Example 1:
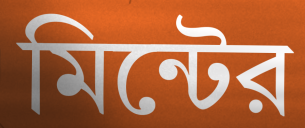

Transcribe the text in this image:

মিন্টের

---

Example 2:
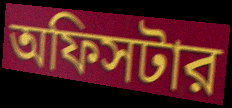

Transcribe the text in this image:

অফিসটার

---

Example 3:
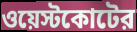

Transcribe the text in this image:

ওয়েস্টকোটের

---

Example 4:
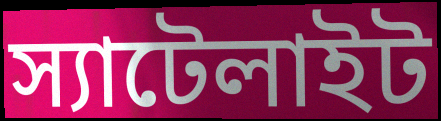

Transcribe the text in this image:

স্যাটেলাইট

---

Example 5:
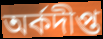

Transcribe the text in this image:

অর্কদীপ্ত